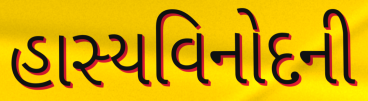
હાસ્યવિનોદની